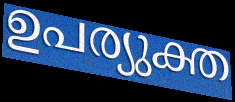
ഉപര്യുക്ത